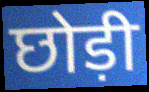
छोड़ी